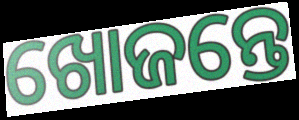
ଖୋଜନ୍ତେ